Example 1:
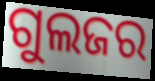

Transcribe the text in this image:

ଗୁଲଜର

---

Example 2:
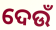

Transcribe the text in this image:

ଦେଉଁ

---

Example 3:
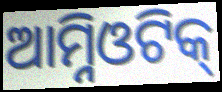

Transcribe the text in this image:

ଆମ୍ନିଓଟିକ୍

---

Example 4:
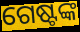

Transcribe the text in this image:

ଗେଷ୍ଟଙ୍କ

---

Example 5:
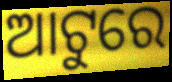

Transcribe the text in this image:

ଆଟୁରେ